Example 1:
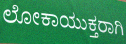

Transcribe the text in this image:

ಲೋಕಾಯುಕ್ತರಾಗಿ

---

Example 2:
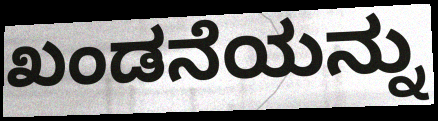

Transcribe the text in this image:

ಖಂಡನೆಯನ್ನು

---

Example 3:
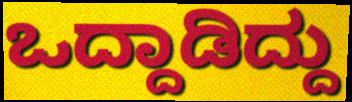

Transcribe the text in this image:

ಒದ್ದಾಡಿದ್ದು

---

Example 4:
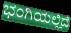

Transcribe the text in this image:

ಭಂಗಿಯಲ್ಲಿದೆ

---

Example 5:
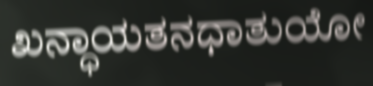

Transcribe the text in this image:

ಖನ್ಧಾಯತನಧಾತುಯೋ